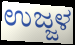
ಉಜ್ಜಳ